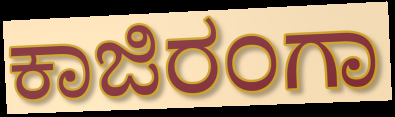
ಕಾಜಿರಂಗಾ